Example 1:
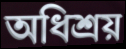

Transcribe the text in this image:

অধিশ্রয়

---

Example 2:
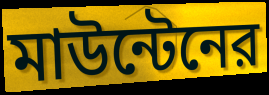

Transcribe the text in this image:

মাউন্টেনের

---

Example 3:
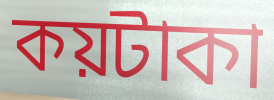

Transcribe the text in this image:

কয়টাকা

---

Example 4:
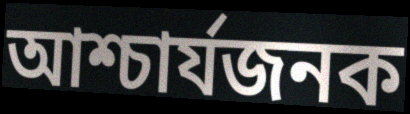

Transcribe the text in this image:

আশ্চার্যজনক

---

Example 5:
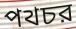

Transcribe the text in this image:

পথচর